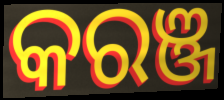
କରଞ୍ଜ